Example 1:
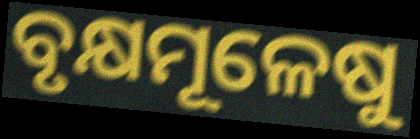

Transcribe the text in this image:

ବୃକ୍ଷମୂଳେଷୁ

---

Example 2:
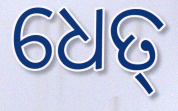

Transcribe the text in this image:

ଧେତ୍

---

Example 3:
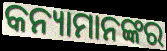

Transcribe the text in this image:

କନ୍ୟାମାନଙ୍କର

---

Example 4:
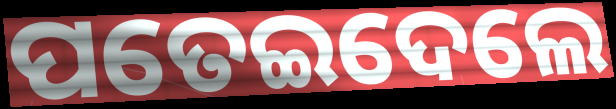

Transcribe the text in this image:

ପତେଇଦେଲେ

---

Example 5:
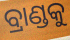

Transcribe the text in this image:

ବ୍ରାଣ୍ଡକୁ